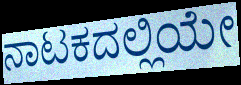
ನಾಟಕದಲ್ಲಿಯೇ